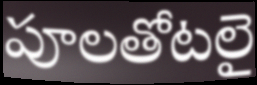
పూలతోటలై